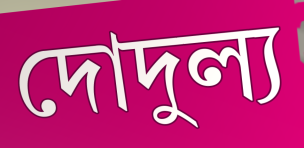
দোদুল্য